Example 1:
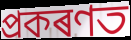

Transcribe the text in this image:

প্ৰকৰণত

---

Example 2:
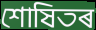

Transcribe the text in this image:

শোষিতৰ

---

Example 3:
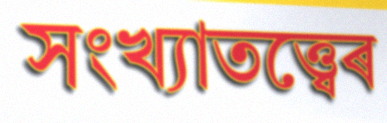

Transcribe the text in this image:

সংখ্যাতত্ত্বেৰ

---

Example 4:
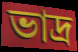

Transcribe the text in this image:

ভাদ্ৰ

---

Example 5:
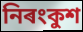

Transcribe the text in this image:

নিৰংকুশ